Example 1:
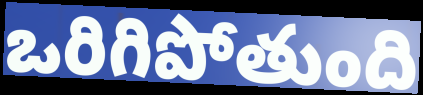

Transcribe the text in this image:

ఒరిగిపోతుంది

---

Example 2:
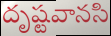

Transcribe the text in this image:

దృష్టవానసి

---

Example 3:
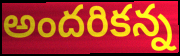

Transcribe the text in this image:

అందరికన్న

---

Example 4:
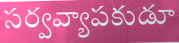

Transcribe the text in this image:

సర్వవ్యాపకుడూ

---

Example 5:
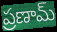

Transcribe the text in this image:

ప్రణామ్